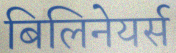
बिलिनेयर्स